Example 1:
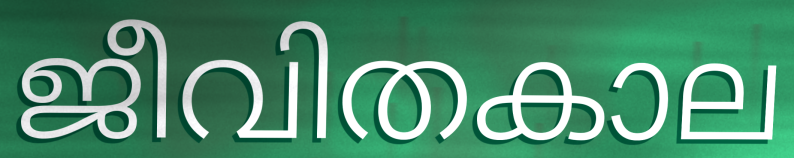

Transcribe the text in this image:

ജീവിതകാല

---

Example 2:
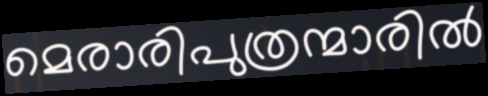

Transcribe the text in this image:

മെരാരിപുത്രന്മാരിൽ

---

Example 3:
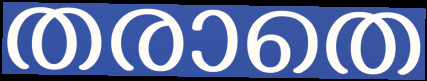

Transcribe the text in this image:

തരാതെ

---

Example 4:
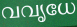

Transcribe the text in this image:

വവൃധേ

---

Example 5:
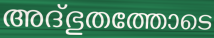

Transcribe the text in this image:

അദ്ഭുതത്തോടെ